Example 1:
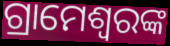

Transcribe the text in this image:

ଗ୍ରାମେଶ୍ୱରଙ୍କ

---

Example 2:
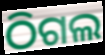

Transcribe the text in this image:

ଠିଗଲ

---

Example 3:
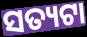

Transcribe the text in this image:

ସତ୍ୟଟା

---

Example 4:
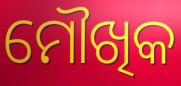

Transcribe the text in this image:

ମୌଖିକ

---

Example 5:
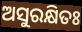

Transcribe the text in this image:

ଅସୁରକ୍ଷିତଃ